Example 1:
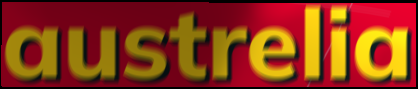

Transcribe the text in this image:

austrelia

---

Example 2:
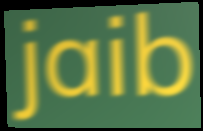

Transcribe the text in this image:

jaib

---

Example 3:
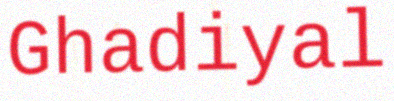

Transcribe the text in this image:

Ghadiyal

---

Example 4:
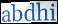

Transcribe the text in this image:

abdhi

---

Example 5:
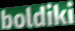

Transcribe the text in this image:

boldiki